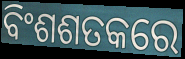
ବିଂଶଶତକରେ